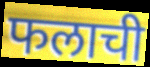
फलाची